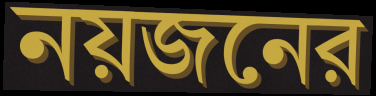
নয়জনের